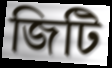
জিটি